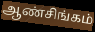
ஆண்சிங்கம்